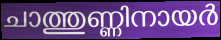
ചാത്തുണ്ണിനായർ